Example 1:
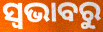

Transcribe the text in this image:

ସ୍ଵଭାବରୁ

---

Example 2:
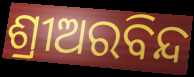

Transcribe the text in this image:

ଶ୍ରୀଅରବିନ୍ଦ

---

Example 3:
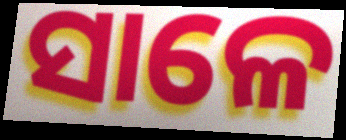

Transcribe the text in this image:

ସାଳେ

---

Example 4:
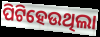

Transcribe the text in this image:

ପିଟିହେଉଥିଲା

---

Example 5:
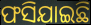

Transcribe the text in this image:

ଫସିଯାଇଛି